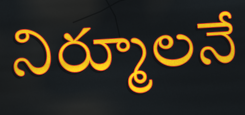
నిర్మూలనే